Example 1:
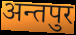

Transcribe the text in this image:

अन्तपुर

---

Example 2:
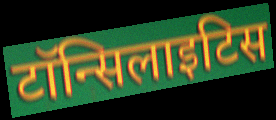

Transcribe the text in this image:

टॉन्सिलाइटिस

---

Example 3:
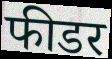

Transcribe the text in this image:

फीडर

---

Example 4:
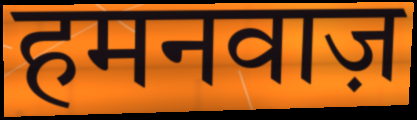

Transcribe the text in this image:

हमनवाज़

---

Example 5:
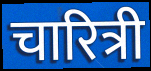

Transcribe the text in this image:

चारित्री